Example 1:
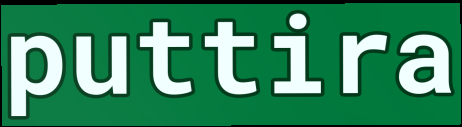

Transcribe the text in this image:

puttira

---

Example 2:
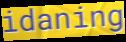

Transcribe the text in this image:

idaning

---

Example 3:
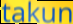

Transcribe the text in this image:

takun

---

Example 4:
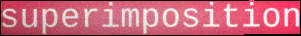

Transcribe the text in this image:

superimposition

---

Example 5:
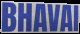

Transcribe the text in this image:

BHAVAI